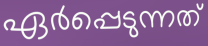
ഏർപ്പെടുന്നത്